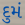
દુમં